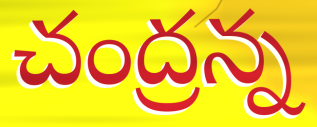
చంద్రన్న